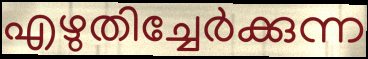
എഴുതിച്ചേർക്കുന്ന